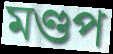
মণ্ডপ